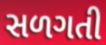
સળગતી